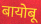
बायोबू